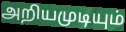
அறியமுடியும்